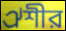
ঐশীর